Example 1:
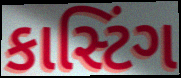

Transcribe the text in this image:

કાસ્ટિંગ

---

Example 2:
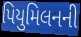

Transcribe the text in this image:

પિયુમિલનની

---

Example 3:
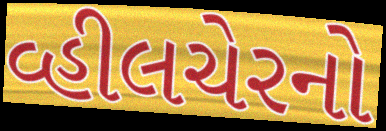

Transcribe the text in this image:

વ્હીલચેરનો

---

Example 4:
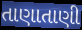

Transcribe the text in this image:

તાણાતાણી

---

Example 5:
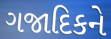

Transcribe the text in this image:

ગજાદિકને